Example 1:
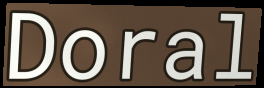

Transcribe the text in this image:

Doral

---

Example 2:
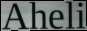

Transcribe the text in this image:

Aheli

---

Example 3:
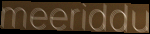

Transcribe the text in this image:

meeriddu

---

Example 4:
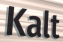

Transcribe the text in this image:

Kalt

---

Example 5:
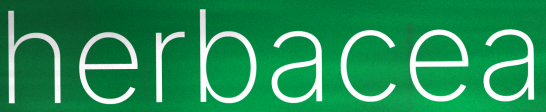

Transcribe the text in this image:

herbacea